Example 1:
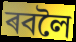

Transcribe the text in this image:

ৰবলৈ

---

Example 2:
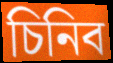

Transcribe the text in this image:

চিনিব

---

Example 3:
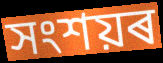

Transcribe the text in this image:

সংশয়ৰ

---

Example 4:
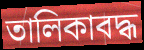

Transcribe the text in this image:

তালিকাবদ্ধ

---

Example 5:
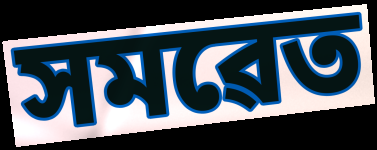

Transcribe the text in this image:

সমৱেত